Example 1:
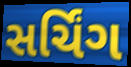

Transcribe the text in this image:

સર્ચિંગ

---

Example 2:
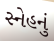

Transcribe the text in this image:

સ્નેહનું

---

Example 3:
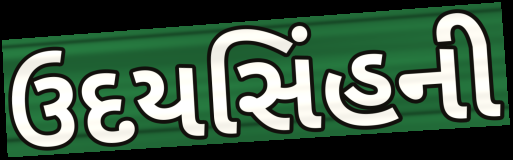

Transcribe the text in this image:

ઉદયસિંહની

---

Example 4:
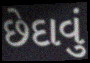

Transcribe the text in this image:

છેદાવું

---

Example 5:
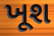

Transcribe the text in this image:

ખૂશ